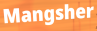
Mangsher